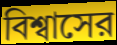
বিশ্বাসের